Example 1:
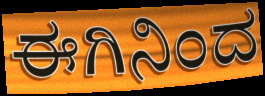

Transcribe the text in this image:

ಈಗಿನಿಂದ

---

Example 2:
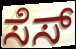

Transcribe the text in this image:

ಸೆಸ್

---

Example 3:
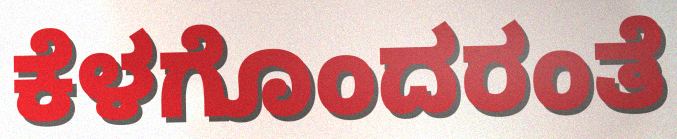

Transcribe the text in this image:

ಕೆಳಗೊಂದರಂತೆ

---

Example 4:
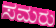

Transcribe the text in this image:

ಸಮರು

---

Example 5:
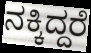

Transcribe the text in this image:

ನಕ್ಕಿದ್ದರೆ